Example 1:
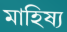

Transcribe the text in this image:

মাহিষ্য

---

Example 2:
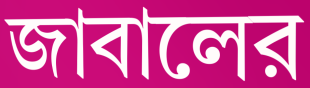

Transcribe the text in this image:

জাবালের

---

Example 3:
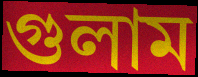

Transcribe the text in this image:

গুলাম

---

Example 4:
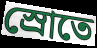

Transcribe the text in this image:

স্রোতে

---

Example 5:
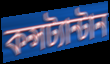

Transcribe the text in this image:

কন্সট্যান্টান